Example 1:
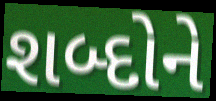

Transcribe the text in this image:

શબ્દોને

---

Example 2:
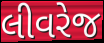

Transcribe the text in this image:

લીવરેજ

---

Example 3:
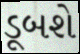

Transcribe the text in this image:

ડૂબશે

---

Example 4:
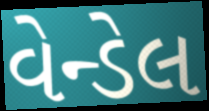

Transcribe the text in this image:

વેન્ડેલ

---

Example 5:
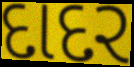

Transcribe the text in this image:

દાદર